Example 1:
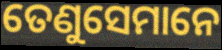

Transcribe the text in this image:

ତେଣୁସେମାନେ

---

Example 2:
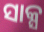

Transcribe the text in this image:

ସାକ୍ସ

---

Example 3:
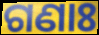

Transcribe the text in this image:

ଗଣାଃ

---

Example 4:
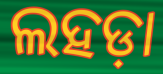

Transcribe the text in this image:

ଲହଡ଼ା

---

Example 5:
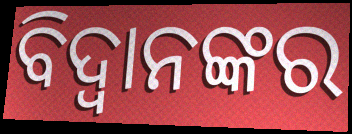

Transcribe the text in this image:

ବିଦ୍ୱାନଙ୍କର